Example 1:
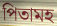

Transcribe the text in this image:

পিতামহ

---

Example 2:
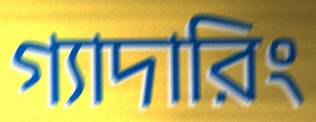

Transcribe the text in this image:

গ্যাদারিং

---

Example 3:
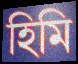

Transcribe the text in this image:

হিমি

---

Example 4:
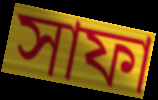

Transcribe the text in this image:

সাফা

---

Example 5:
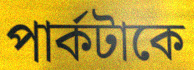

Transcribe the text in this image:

পার্কটাকে